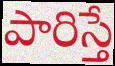
పారిస్తే